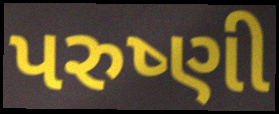
પરુષ્ણી